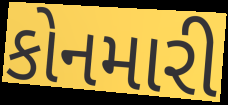
કોનમારી